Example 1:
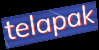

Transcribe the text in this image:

telapak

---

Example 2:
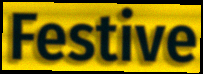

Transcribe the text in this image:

Festive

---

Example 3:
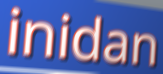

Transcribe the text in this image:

inidan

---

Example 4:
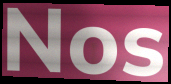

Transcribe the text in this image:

Nos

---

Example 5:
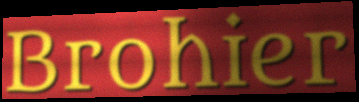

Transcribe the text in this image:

Brohier